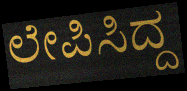
ಲೇಪಿಸಿದ್ದ